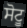
ਸੋਟੂ